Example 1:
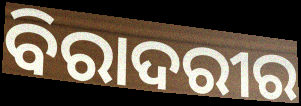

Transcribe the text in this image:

ବିରାଦରୀର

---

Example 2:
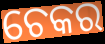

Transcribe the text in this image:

ଚେକର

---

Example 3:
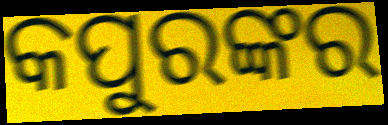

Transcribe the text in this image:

କପୁରଙ୍କର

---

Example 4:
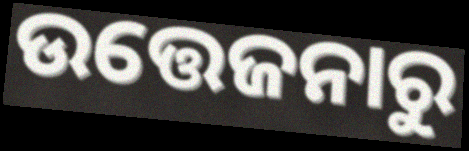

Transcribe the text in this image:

ଉତ୍ତେଜନାରୁ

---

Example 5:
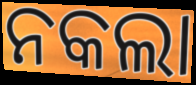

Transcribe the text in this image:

ନକଲା